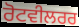
ਰੋਟਵੀਲਰਰ